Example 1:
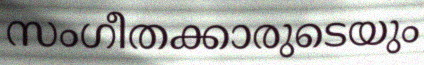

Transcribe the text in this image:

സംഗീതക്കാരുടെയും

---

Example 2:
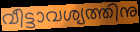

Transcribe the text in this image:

വീട്ടാവശ്യത്തിനു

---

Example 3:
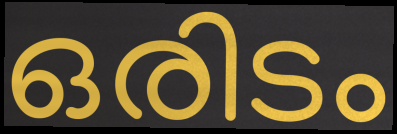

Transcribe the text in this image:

ഒരിടം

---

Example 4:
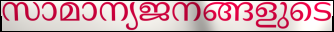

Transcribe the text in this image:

സാമാന്യജനങ്ങളുടെ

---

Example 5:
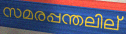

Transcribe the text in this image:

സമരപ്പന്തലില്